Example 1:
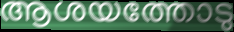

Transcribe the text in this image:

ആശയത്തോടു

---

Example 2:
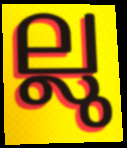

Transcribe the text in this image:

ല്ലു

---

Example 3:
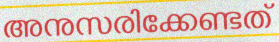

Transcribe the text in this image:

അനുസരിക്കേണ്ടത്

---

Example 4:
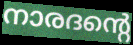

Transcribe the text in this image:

നാരദന്റെ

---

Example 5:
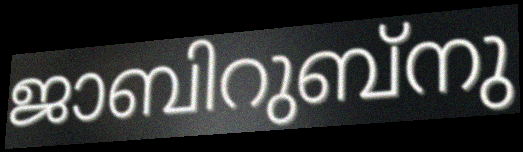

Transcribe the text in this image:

ജാബിറുബ്നു